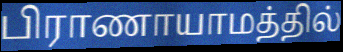
பிராணாயாமத்தில்